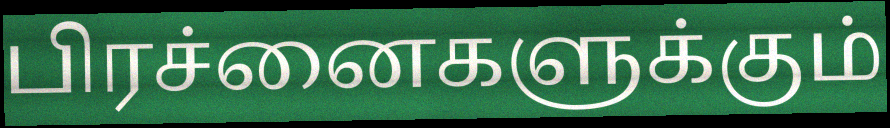
பிரச்னைகளுக்கும்